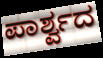
ಪಾರ್ಶ್ವದ